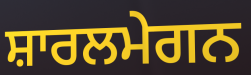
ਸ਼ਾਰਲਮੇਗਨ